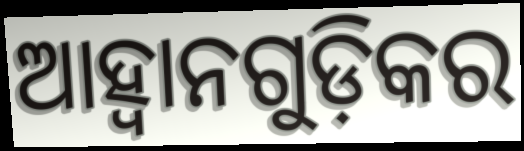
ଆହ୍ଵାନଗୁଡ଼ିକର